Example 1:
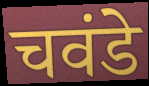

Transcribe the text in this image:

चवंडे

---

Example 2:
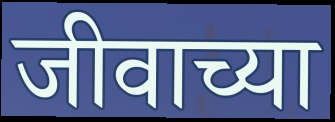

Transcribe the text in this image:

जीवाच्या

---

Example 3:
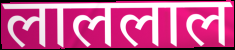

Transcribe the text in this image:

लाललाल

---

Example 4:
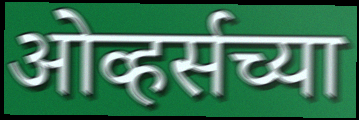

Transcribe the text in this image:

ओव्हर्सच्या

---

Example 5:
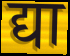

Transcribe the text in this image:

द्या